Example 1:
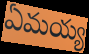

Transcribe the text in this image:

ఏమయ్య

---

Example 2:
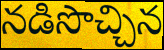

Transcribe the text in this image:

నడిసొచ్చిన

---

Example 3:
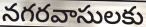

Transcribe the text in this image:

నగరవాసులకు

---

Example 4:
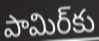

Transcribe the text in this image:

పామిర్‌కు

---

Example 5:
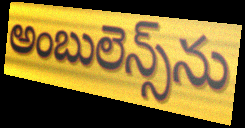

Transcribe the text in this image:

అంబులెన్స్‌ను